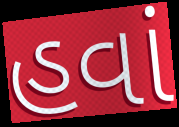
હવાં